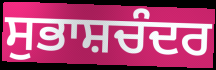
ਸੁਭਾਸ਼ਚੰਦਰ